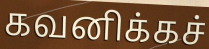
கவனிக்கச்